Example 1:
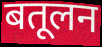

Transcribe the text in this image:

बतूलन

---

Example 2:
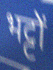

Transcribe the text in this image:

भट्टों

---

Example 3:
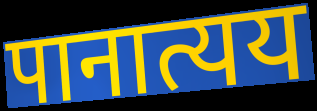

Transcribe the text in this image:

पानात्यय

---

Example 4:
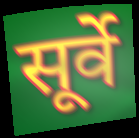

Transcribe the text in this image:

सूर्वे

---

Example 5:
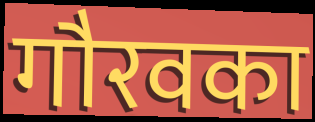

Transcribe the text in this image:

गौरवका